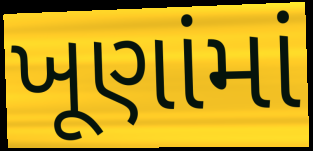
ખૂણાંમાં